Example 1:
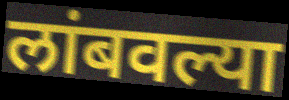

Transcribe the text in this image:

लांबवल्या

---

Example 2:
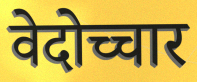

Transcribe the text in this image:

वेदोच्चार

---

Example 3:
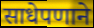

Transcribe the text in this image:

साधेपणाने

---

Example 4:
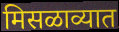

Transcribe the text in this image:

मिसळाव्यात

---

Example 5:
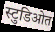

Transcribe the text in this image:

स्टुडिओत